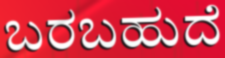
ಬರಬಹುದೆ